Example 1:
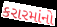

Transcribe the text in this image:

કરારમાંનો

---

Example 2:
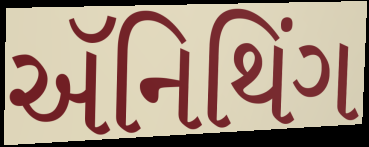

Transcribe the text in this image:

ઍનિથિંગ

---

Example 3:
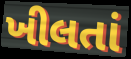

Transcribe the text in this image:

ખીલતાં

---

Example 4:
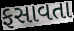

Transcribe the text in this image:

ફસાવતા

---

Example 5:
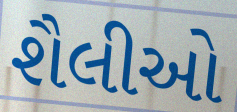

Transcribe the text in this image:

શૈલીઓ